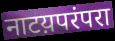
नाटय़परंपरा